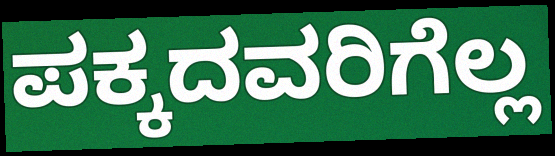
ಪಕ್ಕದವರಿಗೆಲ್ಲ